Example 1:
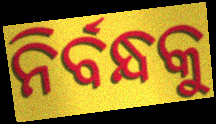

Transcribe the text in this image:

ନିର୍ବନ୍ଧକୁ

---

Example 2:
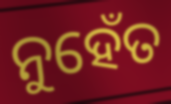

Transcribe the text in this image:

ନୁହେଁତ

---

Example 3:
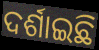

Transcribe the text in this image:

ଦର୍ଶାଇଛି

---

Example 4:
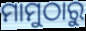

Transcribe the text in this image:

ମାମୁଠାରୁ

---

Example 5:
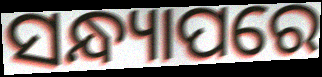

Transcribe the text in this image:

ସନ୍ଧ୍ୟାପରେ